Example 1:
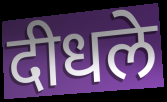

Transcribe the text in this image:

दीधले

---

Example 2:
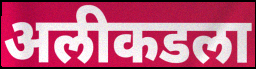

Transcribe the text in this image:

अलीकडला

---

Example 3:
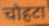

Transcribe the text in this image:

चोहटा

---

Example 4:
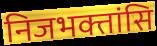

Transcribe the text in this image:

निजभक्तांसि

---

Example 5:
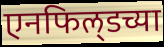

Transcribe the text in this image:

एनफिल्डच्या